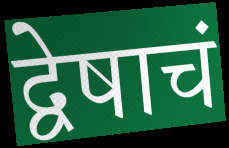
द्वेषाचं